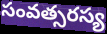
సంవత్సరస్య